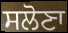
ਸਲੋਣਾ